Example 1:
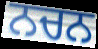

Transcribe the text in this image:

ਨਚਨ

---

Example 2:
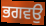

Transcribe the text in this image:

ਭਗਵਉ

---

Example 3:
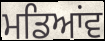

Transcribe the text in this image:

ਮਡਿਆਂਵ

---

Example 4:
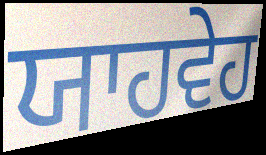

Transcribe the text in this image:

ਯਾਹਵੇਹ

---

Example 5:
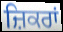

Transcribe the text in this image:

ਜ਼ਿਕਰਾਂ